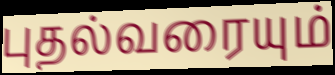
புதல்வரையும்